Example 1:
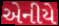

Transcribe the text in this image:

એનીયે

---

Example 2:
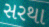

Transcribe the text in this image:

સરથા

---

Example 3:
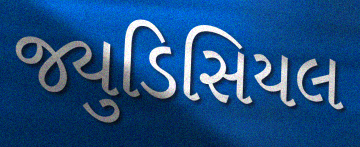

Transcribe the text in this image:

જ્યુડિસિયલ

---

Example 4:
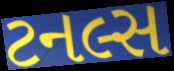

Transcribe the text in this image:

ટનલ્સ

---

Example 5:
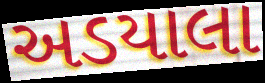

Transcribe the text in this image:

અડયાલા